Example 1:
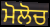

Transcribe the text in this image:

ਮੋਲੋਚ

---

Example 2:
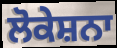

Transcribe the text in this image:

ਲੋਕੇਸ਼ਨਾ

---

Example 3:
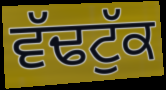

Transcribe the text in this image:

ਵੱਢਟੁੱਕ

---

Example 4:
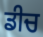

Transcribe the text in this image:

ਡੀਚ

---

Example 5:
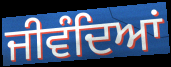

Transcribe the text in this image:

ਜੀਵੰਦਿਆਂ